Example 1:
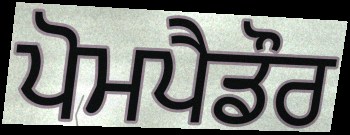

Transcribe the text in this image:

ਪੋਮਪੈਡੌਰ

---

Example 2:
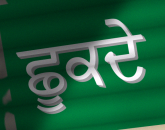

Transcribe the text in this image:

ਛੂਕਦੇ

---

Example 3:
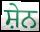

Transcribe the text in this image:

ਸ਼ੇਨ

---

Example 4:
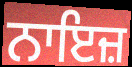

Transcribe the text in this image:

ਨਾਇਜ਼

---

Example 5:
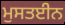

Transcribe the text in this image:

ਮੁਸਤਈਨ